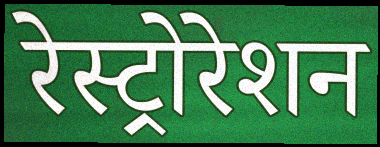
रेस्ट्रोरेशन